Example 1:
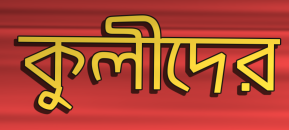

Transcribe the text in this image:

কুলীদের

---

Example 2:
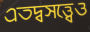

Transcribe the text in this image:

এতদ্বসত্ত্বেও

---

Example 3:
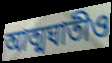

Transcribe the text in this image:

আত্মঘাতীও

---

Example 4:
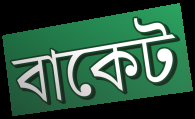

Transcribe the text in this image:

বাকেট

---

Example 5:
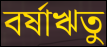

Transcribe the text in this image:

বর্ষাঋতু